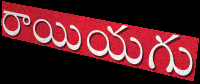
రాయియగు